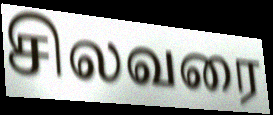
சிலவரை